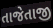
તાજેતાજી